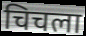
चिचला